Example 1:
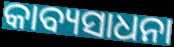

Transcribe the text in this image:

କାବ୍ୟସାଧନା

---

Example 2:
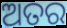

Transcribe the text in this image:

ଅତର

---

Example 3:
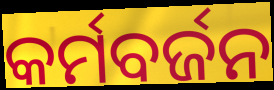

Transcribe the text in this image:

କର୍ମବର୍ଜନ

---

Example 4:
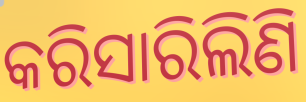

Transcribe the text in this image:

କରିସାରିଲିଣି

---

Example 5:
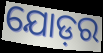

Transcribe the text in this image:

ଯୋଡ଼ର